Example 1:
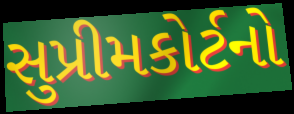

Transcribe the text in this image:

સુપ્રીમકોર્ટનો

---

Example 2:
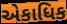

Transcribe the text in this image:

એકાધિક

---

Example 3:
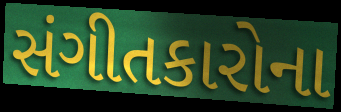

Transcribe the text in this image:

સંગીતકારોના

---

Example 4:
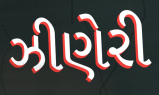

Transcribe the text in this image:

ઝીણેરી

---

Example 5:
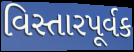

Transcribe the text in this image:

વિસ્તારપૂર્વક